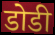
डोडी